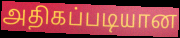
அதிகப்படியான